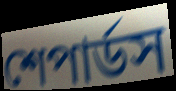
শেপার্ডস